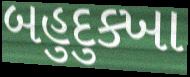
બહુદુક્ખા